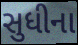
સુધીના